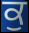
ਕੁ